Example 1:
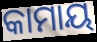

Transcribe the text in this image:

କାମାୟ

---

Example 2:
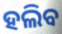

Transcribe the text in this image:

ହଲିବ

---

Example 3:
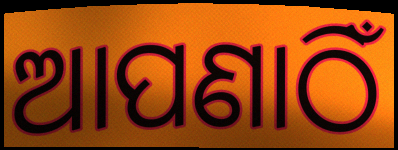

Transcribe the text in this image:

ଆପଣାଠିଁ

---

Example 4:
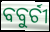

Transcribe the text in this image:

ବବୁର୍ଚୀ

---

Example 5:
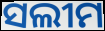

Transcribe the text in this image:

ସଲୀମ